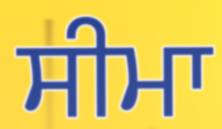
ਸੀਮਾ